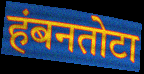
हंबनतोटा